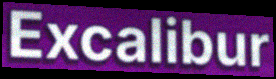
Excalibur